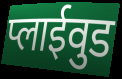
प्‍लाईवुड